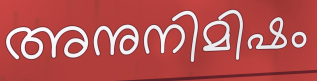
അനുനിമിഷം